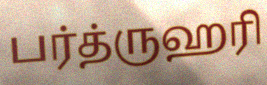
பர்த்ருஹரி